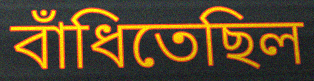
বাঁধিতেছিল